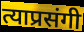
त्याप्रसंगी